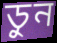
ডুন